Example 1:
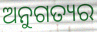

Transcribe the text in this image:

ଅନୁଗତ୍ୟର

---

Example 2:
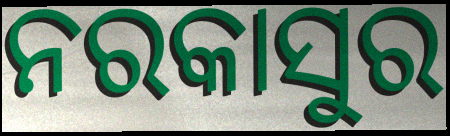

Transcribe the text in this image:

ନରକାସୁର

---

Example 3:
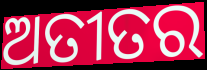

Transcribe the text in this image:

ଅତୀତର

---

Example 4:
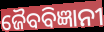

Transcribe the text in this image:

ଜୈବବିଜ୍ଞାନୀ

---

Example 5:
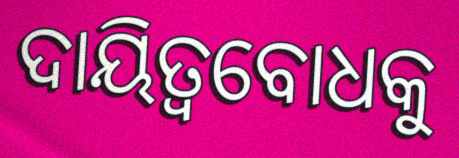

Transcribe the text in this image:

ଦାୟିତ୍ୱବୋଧକୁ